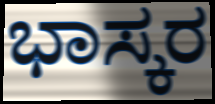
ಭಾಸ್ಕರ